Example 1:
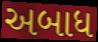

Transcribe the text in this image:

અબાધ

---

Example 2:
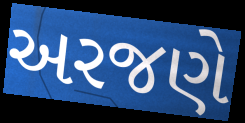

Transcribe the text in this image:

અરજણે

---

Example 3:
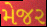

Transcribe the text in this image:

મેજર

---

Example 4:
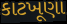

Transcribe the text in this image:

કાટખૂણા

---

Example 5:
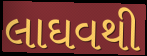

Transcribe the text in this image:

લાઘવથી